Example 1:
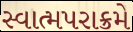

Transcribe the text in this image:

સ્વાત્મપરાક્રમે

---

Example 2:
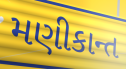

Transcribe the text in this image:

મણીકાન્ત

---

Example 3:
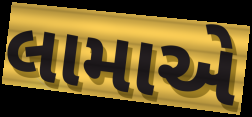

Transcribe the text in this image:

લામાએ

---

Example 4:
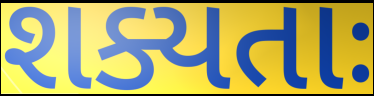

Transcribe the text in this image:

શક્યતાઃ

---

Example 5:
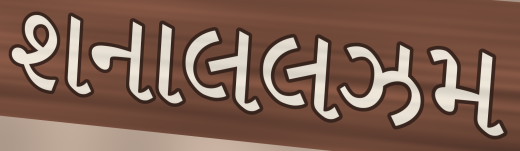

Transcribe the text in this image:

શનાલલઝમ